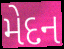
મેદન